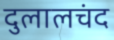
दुलालचंद